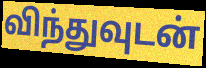
விந்துவுடன்